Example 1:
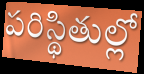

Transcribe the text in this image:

పరిస్థితుల్లో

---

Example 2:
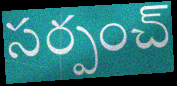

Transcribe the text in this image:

సర్పంచ్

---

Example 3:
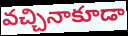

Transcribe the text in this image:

వచ్చినాకూడా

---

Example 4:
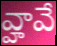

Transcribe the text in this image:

వ్హావే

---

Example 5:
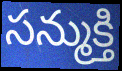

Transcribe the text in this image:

సన్ముక్తి